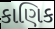
કાણિક